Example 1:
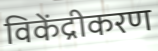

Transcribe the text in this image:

विकेंद्रीकरण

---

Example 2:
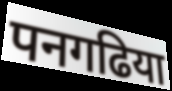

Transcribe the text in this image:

पनगढिया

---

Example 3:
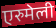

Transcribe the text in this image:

एरुमेली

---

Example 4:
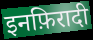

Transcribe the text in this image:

इनफ़िरादी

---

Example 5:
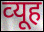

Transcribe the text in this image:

व्‍यूह